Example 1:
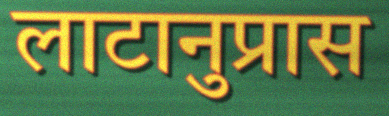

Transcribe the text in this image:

लाटानुप्रास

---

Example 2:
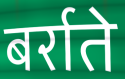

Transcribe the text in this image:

बर्राते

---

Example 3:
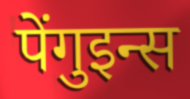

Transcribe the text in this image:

पेंगुइन्स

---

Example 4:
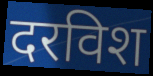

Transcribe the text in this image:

दरविश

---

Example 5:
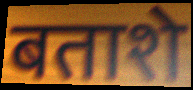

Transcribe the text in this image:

बताशे